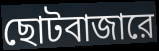
ছোটবাজারে